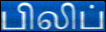
பிலிப்